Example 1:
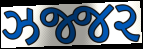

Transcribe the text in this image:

ઝજ્જર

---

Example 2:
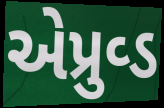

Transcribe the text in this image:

એપ્રુવ્ડ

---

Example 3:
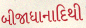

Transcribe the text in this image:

બીજાધાનાદિથી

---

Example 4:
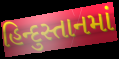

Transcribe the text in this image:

હિન્દુસ્તાનમાં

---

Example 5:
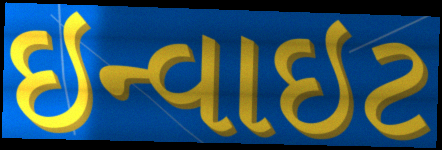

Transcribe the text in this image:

ઇન્વાઇટ